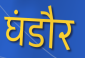
घंडौर